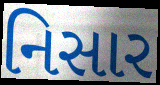
નિસાર